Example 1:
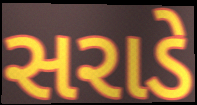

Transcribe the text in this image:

સરાડે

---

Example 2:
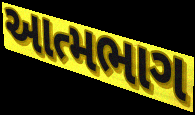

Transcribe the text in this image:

આત્મભાગ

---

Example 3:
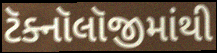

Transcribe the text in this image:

ટૅક્નૉલૉજીમાંથી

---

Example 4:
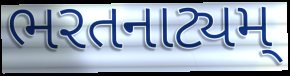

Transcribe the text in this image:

ભરતનાટ્યમ્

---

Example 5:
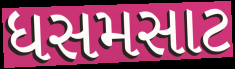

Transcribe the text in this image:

ધસમસાટ